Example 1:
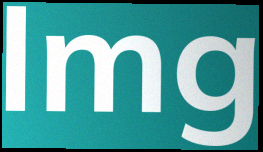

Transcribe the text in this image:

Img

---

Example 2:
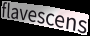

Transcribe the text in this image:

flavescens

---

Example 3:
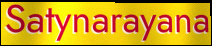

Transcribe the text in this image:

Satynarayana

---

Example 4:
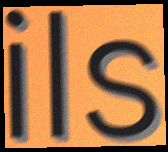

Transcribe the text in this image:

ils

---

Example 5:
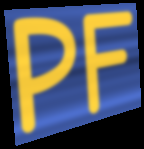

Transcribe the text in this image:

PF